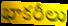
భాకరీలు